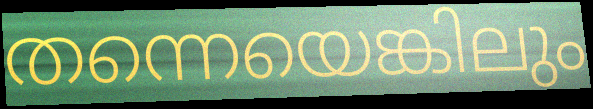
തന്നെയെങ്കിലും